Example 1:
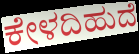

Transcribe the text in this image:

ಕೇಳದಿಹುದೆ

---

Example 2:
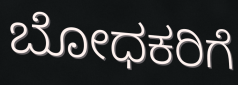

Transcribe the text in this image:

ಬೋಧಕರಿಗೆ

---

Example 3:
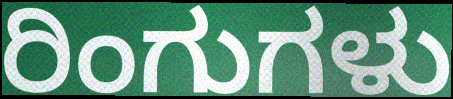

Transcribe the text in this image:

ರಿಂಗುಗಳು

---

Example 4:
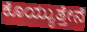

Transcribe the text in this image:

ಕೊಯ್ಯುತ್ತೇನೆ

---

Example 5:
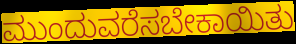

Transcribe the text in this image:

ಮುಂದುವರೆಸಬೇಕಾಯಿತು